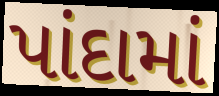
પાંદામાં